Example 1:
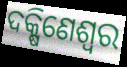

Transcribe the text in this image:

ଦକ୍ଷିଣେଶ୍ୱର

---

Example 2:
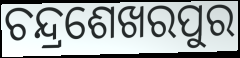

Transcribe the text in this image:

ଚନ୍ଦ୍ରଶେଖରପୁର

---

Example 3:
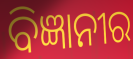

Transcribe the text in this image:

ବିଜ୍ଞାନୀର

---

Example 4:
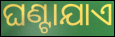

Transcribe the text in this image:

ଘଣ୍ଟାଯାଏ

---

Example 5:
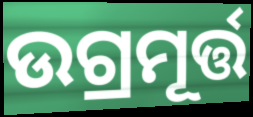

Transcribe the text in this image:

ଉଗ୍ରମୂର୍ତ୍ତ